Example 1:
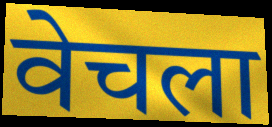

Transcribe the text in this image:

वेचला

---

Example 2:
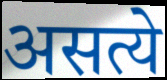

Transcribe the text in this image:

असत्ये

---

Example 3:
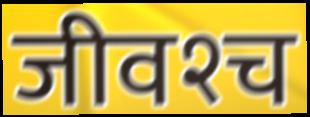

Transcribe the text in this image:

जीवश्च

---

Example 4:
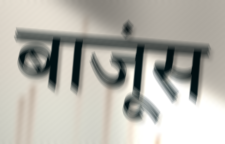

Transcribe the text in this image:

बाजूंस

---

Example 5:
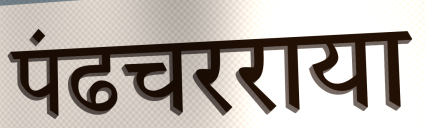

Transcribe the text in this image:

पंढचरराया